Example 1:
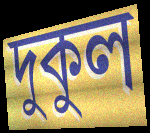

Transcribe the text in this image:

দুকুল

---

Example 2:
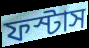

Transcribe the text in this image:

ফস্টাস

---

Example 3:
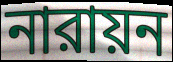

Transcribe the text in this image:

নারায়ন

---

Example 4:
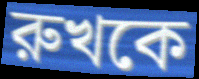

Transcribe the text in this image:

রুখকে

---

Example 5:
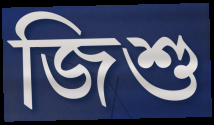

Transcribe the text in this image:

জিশু